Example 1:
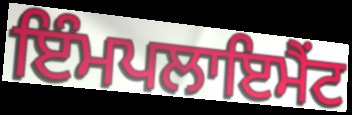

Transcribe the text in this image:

ਇੰਮਪਲਾਇਮੈਂਟ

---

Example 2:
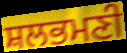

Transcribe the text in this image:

ਸ਼ਲਭਮਣੀ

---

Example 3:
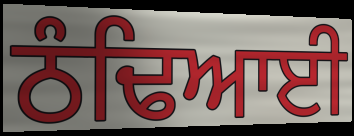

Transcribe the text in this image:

ਠੰਢਿਆਈ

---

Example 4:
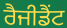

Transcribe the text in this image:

ਰੈਜੀਡੈਂਟ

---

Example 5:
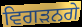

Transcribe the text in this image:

ਵਿਗੜਨਗੇ